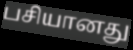
பசியானது